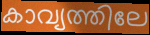
കാവ്യത്തിലേ